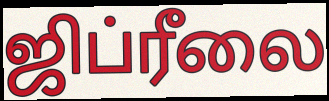
ஜிப்ரீலை